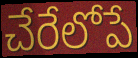
చేరేలోపే